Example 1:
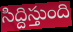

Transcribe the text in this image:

సిద్దిస్తుంది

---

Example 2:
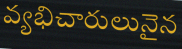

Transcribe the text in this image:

వ్యభిచారులునైన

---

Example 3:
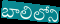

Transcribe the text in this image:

బాలిలోని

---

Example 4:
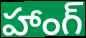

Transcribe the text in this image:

హాంగ్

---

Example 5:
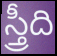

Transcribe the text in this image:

స్త్రీది